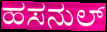
ಹಸನುಲ್